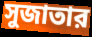
সুজাতার